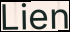
Lien